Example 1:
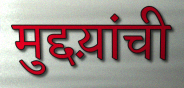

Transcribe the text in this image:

मुद्दय़ांची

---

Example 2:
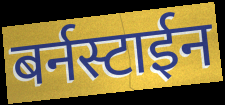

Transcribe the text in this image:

बर्नस्टाईन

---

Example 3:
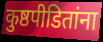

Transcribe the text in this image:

कुष्ठपीडितांना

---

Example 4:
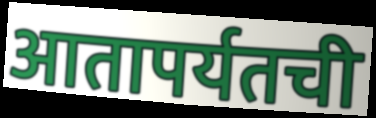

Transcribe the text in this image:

आतापर्यतची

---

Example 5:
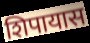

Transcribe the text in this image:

शिपायास